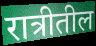
रात्रीतील